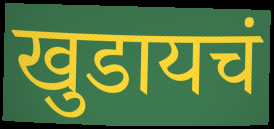
खुडायचं